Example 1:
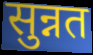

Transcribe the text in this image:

सुन्नत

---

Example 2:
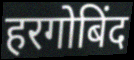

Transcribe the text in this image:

हरगोबिंद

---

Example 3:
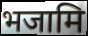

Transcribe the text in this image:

भजामि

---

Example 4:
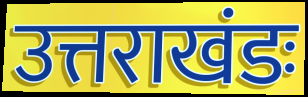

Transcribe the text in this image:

उत्तराखंडः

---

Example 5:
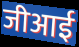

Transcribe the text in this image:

जीआई